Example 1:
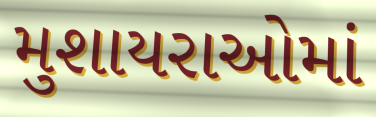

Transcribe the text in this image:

મુશાયરાઓમાં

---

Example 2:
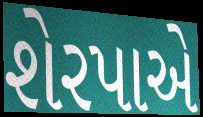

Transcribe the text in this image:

શેરપાએ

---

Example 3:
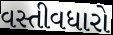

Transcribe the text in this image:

વસ્તીવધારો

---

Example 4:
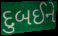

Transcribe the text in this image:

દુબઈને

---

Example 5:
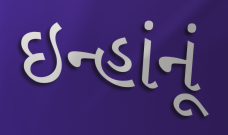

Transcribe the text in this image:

ઇન્હાંનૂં